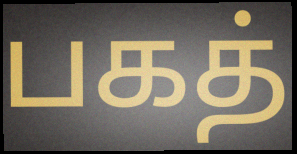
பகத்